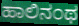
ಹಾಲಿನಂಥ